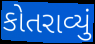
કોતરાવ્યું